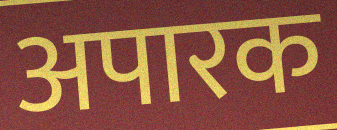
अपारक